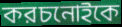
করচনোইকে